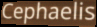
Cephaelis